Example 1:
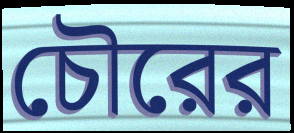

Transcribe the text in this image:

চৌরের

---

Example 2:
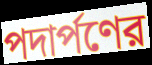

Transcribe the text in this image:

পদার্পণের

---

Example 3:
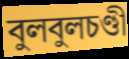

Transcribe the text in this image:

বুলবুলচণ্ডী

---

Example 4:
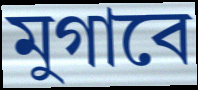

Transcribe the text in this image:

মুগাবে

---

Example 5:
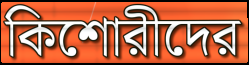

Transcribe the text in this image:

কিশোরীদের